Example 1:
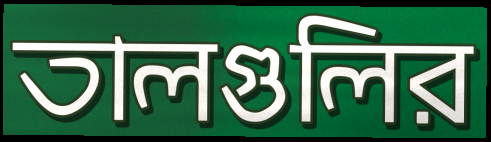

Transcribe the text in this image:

তালগুলির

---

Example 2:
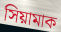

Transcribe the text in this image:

সিয়ামাক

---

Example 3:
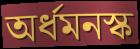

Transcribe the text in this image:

অর্ধমনস্ক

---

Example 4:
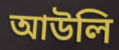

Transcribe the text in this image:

আউলি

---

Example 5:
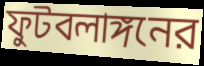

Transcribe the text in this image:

ফুটবলাঙ্গনের